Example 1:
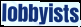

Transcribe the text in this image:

lobbyists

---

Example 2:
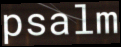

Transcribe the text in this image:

psalm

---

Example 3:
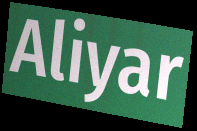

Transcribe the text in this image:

Aliyar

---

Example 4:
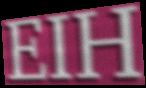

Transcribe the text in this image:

EIH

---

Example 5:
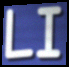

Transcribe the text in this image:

LI